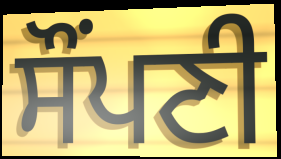
ਸੌਂਪਣੀ